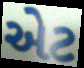
એટ